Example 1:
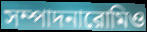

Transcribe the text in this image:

সম্পাদনারোমিও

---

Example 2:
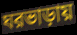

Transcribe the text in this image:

ঘরভাড়ায়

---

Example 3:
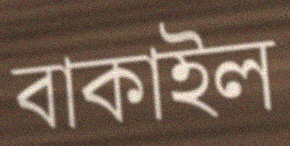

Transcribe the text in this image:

বাকাইল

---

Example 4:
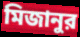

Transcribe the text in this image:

মিজানুর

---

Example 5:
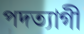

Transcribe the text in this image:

পদত্যাগী